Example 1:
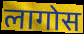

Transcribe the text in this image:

लागोस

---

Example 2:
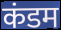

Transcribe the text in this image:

कंडम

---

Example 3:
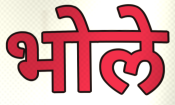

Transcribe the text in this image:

भोले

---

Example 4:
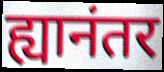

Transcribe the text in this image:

ह्यानंतर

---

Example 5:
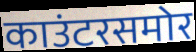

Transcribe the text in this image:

काउंटरसमोर